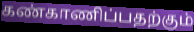
கண்காணிப்பதற்கும்